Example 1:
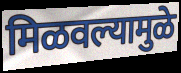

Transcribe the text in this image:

मिळवल्यामुळे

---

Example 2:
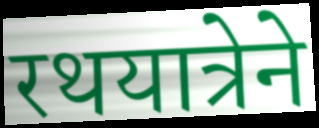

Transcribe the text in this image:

रथयात्रेने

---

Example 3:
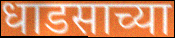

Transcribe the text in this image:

धाडसाच्या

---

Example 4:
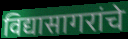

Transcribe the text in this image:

विद्यासागरांचे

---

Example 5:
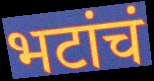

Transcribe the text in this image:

भटांचं